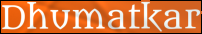
Dhumatkar